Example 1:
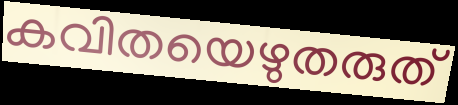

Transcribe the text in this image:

കവിതയെഴുതരുത്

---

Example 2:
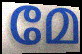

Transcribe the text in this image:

മേ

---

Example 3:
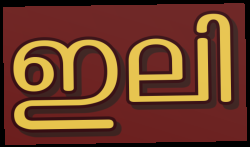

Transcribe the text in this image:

ഇലി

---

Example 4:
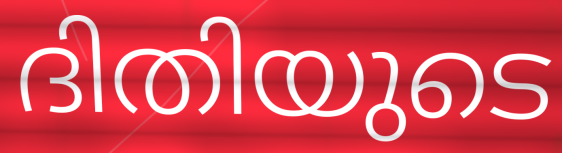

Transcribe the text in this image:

ദിതിയുടെ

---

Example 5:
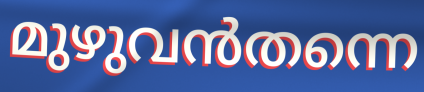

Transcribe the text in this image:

മുഴുവൻതന്നെ